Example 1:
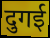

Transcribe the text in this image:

दुगई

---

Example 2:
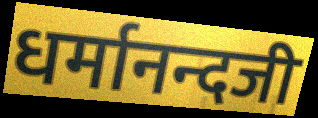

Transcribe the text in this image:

धर्मानन्दजी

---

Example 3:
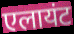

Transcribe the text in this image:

एलायंट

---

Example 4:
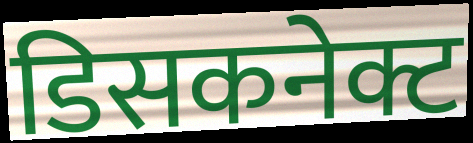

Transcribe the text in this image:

डिसकनेक्ट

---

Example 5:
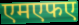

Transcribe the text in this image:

एमएफए